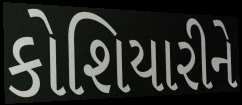
કોશિયારીને